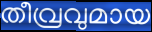
തീവ്രവുമായ